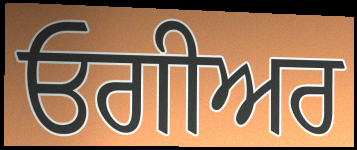
ਓਗੀਅਰ